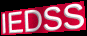
IEDSS